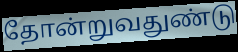
தோன்றுவதுண்டு